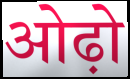
ओढ़ो